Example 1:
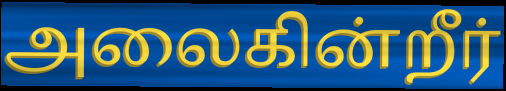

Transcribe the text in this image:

அலைகின்றீர்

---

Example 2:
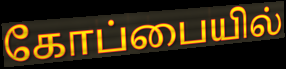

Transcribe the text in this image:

கோப்பையில்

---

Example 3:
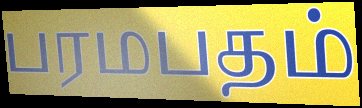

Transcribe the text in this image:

பரமபதம்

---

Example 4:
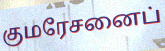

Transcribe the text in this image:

குமரேசனைப்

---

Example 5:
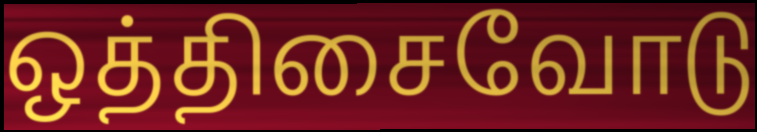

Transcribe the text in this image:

ஒத்திசைவோடு